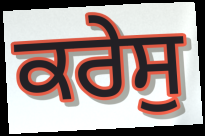
ਕਰੇਸੁ